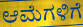
ಆಮೆಗಳಿಗೆ